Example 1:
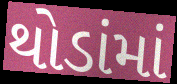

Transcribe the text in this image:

થોડાંમાં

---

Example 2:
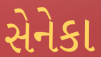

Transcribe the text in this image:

સેનેકા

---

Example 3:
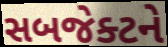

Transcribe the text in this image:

સબજેક્ટને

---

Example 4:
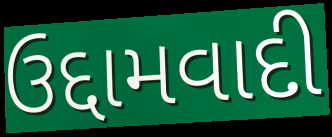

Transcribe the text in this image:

ઉદ્દામવાદી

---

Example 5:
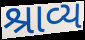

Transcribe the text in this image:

શ્રાવ્ય